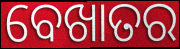
ବେଖାତର